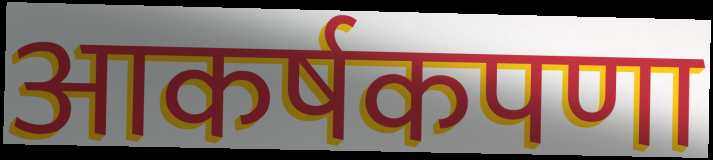
आकर्षकपणा